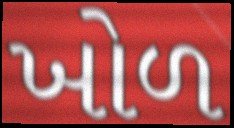
ખોળ